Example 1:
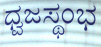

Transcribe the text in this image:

ಧ್ವಜಸ್ಥಂಭ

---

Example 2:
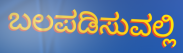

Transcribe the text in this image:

ಬಲಪಡಿಸುವಲ್ಲಿ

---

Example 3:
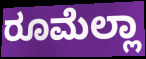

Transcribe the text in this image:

ರೂಮೆಲ್ಲಾ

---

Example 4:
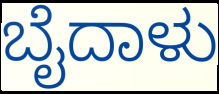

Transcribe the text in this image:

ಬೈದಾಳು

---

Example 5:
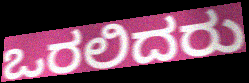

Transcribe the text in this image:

ಒರಲಿದರು